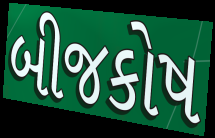
બીજકોષ